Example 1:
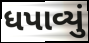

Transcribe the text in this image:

ધપાવ્યું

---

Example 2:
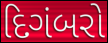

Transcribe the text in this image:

દિગંબરો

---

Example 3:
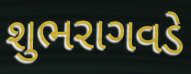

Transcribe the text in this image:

શુભરાગવડે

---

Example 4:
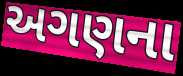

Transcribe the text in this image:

અગણના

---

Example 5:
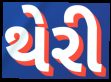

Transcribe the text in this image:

થેરી